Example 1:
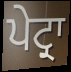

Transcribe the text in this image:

ਪੇਟ੍ਰਾ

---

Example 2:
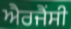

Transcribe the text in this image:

ਐਰਜੈਂਸੀ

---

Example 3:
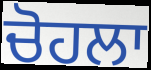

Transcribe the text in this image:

ਚੋਹਲਾ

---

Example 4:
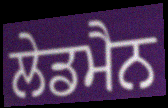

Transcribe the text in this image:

ਲੇਡਮੈਨ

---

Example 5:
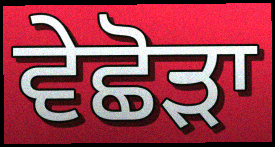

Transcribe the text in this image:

ਵੇਛੋੜਾ